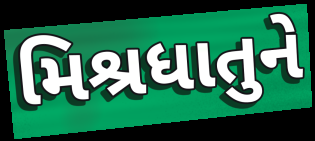
મિશ્રધાતુને